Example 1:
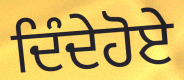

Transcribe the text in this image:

ਦਿੰਦੇਹੋਏ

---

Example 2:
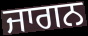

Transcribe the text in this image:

ਜਾਗਨ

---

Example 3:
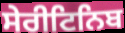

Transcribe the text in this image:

ਸੇਰੀਟਿਨਿਬ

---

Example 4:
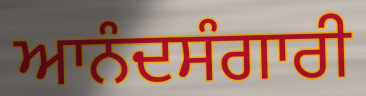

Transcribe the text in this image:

ਆਨੰਦਸੰਗਾਰੀ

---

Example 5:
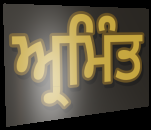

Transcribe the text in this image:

ਅ੍ਰਮਿੰਤ